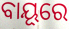
ବାୟୂରେ